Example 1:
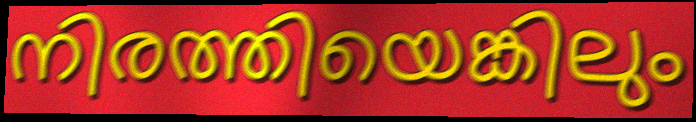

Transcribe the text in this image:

നിരത്തിയെങ്കിലും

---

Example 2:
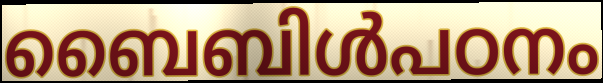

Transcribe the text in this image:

ബൈബിൾപഠനം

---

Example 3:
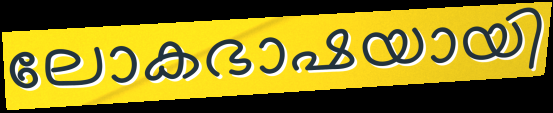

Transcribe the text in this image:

ലോകഭാഷയായി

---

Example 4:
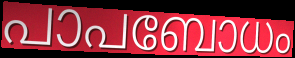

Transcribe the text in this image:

പാപബോധം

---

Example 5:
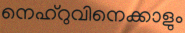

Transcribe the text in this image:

നെഹ്റുവിനെക്കാളും